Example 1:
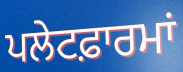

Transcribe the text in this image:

ਪਲੇਟਫ਼ਾਰਮਾਂ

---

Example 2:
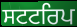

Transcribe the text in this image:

ਸਟਟਰਿਪ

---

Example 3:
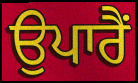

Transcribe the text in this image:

ਉਪਾਰੈਂ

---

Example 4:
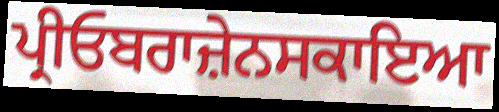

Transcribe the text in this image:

ਪ੍ਰੀਓਬਰਾਜ਼ੇਨਸਕਾਇਆ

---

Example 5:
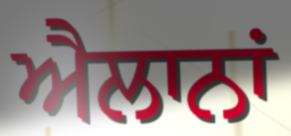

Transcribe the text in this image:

ਐਲਾਨਾਂ